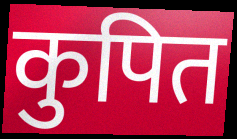
कुपित